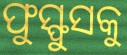
ଫୁସ୍ଫୁସକୁ